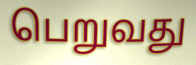
பெறுவது